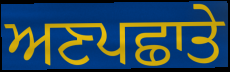
ਅਣਪਛਾਤੇ